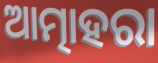
ଆତ୍ମାହରା